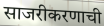
साजरीकरणाची